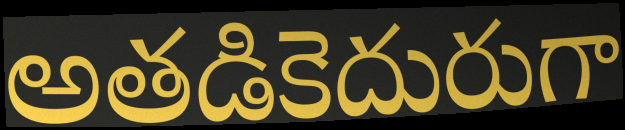
అతడికెదురుగా